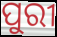
ପୁରୀ